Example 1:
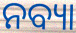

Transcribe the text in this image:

ନବ୍ୟା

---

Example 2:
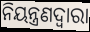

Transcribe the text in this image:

ନିୟନ୍ତ୍ରଣଦ୍ବାରା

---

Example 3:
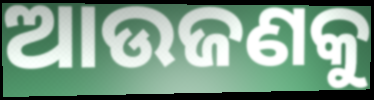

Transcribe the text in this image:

ଆଉଜଣକୁ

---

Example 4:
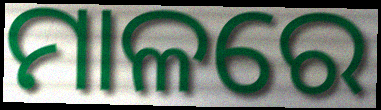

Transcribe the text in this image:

ମାଳରେ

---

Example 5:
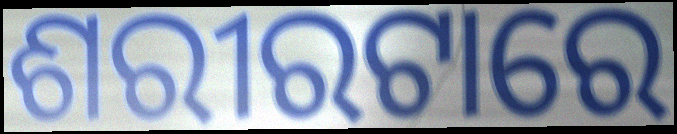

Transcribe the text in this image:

ଶରୀରଟାରେ